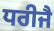
ਧਰੀਜੈ